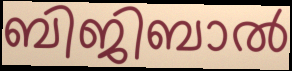
ബിജിബാൽ